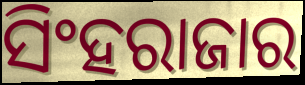
ସିଂହରାଜାର